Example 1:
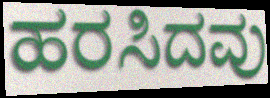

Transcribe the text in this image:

ಹರಸಿದವು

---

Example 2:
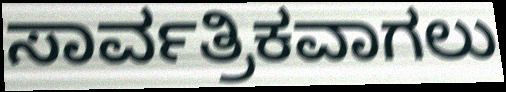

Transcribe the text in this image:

ಸಾರ್ವತ್ರಿಕವಾಗಲು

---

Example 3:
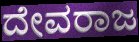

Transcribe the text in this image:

ದೇವರಾಜ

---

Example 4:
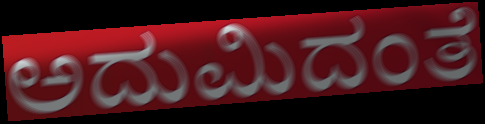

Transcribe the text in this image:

ಅದುಮಿದಂತೆ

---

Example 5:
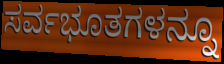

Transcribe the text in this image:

ಸರ್ವಭೂತಗಳನ್ನೂ